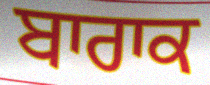
ਬਾਰਾਕ